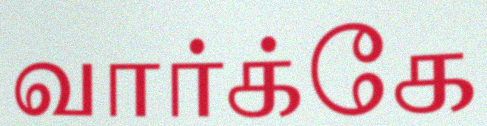
வார்க்கே